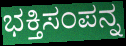
ಭಕ್ತಿಸಂಪನ್ನ